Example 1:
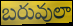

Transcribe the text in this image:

బరువులా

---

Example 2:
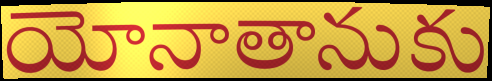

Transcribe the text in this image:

యోనాతానుకు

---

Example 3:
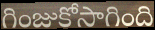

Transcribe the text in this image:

గింజుకోసాగింది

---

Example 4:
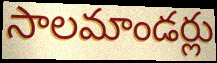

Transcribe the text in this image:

సాలమాండర్లు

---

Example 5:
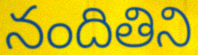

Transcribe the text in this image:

నందితిని